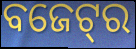
ବଜେଟ୍‌ର